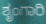
ಶೃಂಗಾರಿ